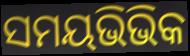
ସମୟଭିଭିକ